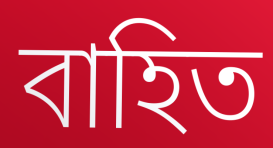
বাহিত